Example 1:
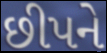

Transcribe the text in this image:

છીપને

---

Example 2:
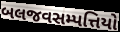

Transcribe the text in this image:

બલજવસમ્પત્તિયો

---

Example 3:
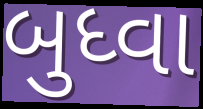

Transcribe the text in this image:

બુધ્વા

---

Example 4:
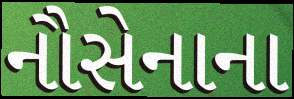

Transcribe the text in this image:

નૌસેનાના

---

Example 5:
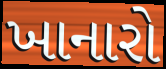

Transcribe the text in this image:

ખાનારો